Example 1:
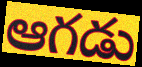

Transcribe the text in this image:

ఆగడు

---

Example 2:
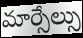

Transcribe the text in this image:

మార్సేల్సు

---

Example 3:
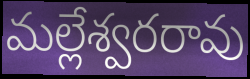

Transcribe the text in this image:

మల్లేశ్వరరావు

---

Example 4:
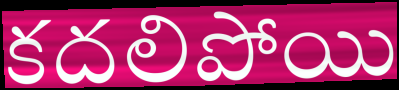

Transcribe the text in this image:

కదలిపోయి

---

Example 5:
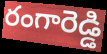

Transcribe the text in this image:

రంగారెడ్డి